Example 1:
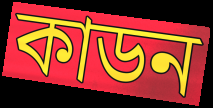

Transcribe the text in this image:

কাডন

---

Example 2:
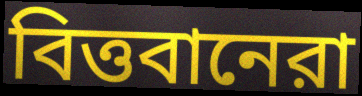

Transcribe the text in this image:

বিত্তবানেরা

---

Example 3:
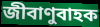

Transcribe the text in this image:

জীবাণুবাহক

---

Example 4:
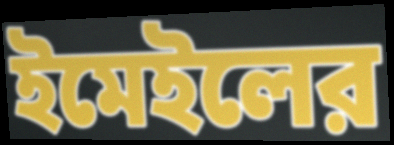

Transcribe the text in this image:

ইমেইলের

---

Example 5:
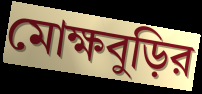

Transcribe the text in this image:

মোক্ষবুড়ির